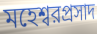
মহেশ্বরপ্রসাদ